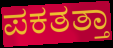
ಪಕತತ್ತಾ